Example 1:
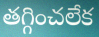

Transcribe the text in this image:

తగ్గించలేక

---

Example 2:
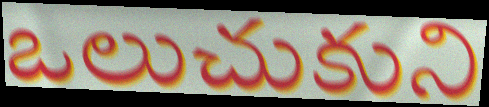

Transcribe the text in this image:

ఒలుచుకుని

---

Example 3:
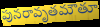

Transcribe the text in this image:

పునరావృతమౌతూ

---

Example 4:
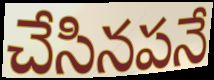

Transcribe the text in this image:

చేసినపనే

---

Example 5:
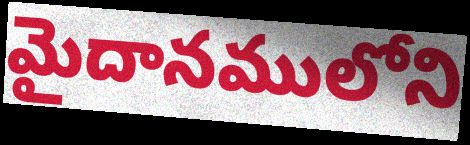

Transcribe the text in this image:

మైదానములోని